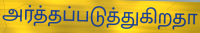
அர்த்தப்படுத்துகிறதா